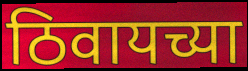
ठिवायच्या